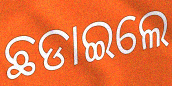
ଛଡାଇଲେ